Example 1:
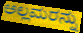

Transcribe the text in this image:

ಅಲ್ಲಮರನ್ನು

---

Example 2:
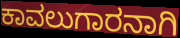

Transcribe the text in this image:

ಕಾವಲುಗಾರನಾಗಿ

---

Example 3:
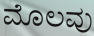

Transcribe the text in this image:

ಮೊಲವು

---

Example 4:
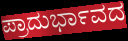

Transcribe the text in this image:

ಪ್ರಾದುರ್ಭಾವದ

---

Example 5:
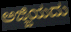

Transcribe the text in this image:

ಅಜ್ಜಿಯದು